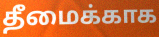
தீமைக்காக